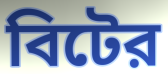
বিটের